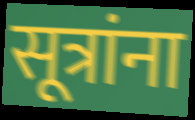
सूत्रांना